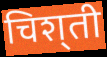
चिश्ती